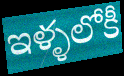
ఇళ్ళలోకీ